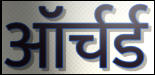
ऑर्चर्ड